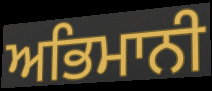
ਅਭਿਮਾਨੀ